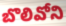
బొలివోని